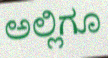
ಅಲ್ಲಿಗೂ